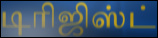
டிரிஜிஸ்ட்